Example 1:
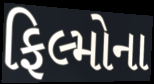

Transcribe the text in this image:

ફિલ્મોના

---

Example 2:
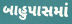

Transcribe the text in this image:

બાહુપાસમાં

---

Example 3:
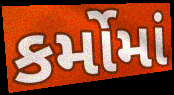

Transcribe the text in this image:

કર્મોમાં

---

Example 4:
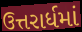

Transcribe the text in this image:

ઉત્તરાર્ધમાં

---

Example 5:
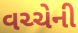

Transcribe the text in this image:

વચ્ચેની